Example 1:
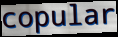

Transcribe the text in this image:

copular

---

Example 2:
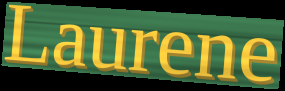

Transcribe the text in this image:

Laurene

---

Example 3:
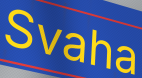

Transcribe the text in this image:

Svaha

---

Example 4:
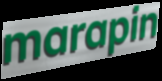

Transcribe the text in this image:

marapin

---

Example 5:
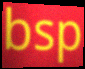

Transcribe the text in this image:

bsp